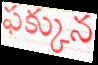
ఫక్కున